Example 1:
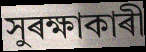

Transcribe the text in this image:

সুৰক্ষাকাৰী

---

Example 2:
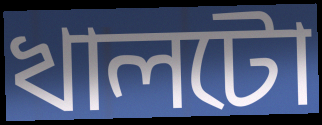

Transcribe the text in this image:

খালটো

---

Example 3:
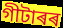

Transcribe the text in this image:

গীটাৰৰ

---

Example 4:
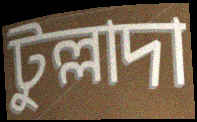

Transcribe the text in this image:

টুল্লাদা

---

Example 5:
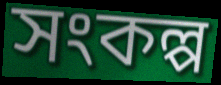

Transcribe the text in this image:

সংকল্প